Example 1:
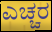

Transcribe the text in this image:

ಎಚ್ಚರ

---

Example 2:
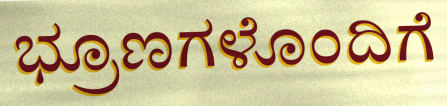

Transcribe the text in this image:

ಭ್ರೂಣಗಳೊಂದಿಗೆ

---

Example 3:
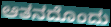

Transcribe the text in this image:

ಆತನದೊಂದು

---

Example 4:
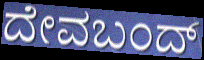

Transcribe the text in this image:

ದೇವಬಂದ್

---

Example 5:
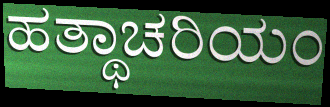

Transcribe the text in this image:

ಹತ್ಥಾಚರಿಯಂ